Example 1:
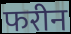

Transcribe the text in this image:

फरीन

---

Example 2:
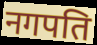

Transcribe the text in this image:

नगपति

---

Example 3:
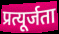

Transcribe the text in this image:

प्रत्यूर्जता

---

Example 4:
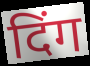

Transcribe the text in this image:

दिंग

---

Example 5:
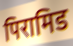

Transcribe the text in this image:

पिरामिड